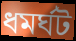
ধমর্ঘট